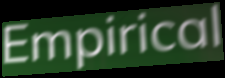
Empirical